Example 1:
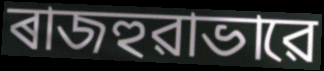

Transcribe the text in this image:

ৰাজহুৱাভাৱে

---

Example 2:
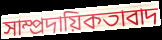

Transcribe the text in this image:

সাম্প্ৰদায়িকতাবাদ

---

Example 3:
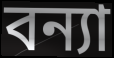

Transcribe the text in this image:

বন্যা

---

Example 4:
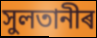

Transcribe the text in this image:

সুলতানীৰ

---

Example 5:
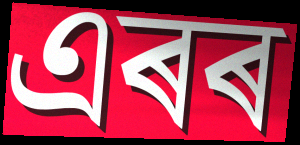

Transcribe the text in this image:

এৰৰ